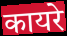
कायरे